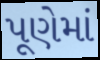
પૂણેમાં